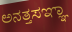
ಅನತ್ತಸಞ್ಞಾ